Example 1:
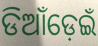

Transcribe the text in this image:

ଡିଆଁଡ଼େଇଁ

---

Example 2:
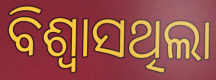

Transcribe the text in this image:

ବିଶ୍ୱାସଥିଲା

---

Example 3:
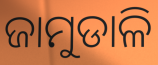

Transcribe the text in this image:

ଜାମୁଡାଳି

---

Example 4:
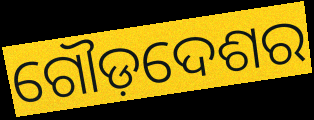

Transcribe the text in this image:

ଗୌଡ଼ଦେଶର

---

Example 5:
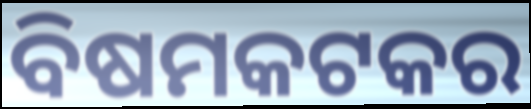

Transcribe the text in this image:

ବିଷମକଟକର